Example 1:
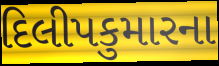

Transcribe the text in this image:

દિલીપકુમારના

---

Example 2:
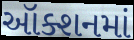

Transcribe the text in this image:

ઑક્શનમાં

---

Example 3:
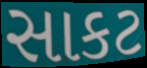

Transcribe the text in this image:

સાકટ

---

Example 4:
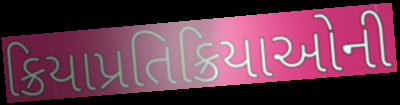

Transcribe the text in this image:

ક્રિયાપ્રતિક્રિયાઓની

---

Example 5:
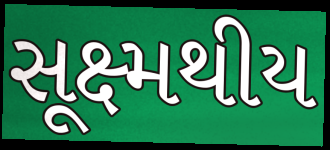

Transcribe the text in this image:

સૂક્ષ્મથીય